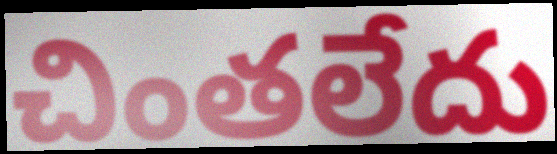
చింతలేదు